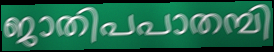
ജാതിപപാതമ്പി